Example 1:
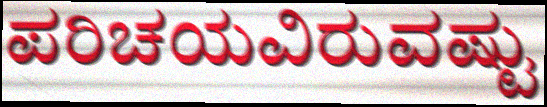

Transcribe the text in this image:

ಪರಿಚಯವಿರುವಷ್ಟು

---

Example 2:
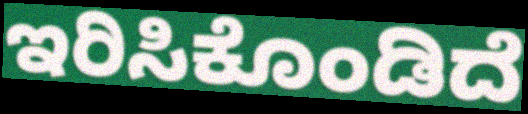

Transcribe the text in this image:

ಇರಿಸಿಕೊಂಡಿದೆ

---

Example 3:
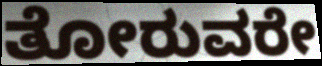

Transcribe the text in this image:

ತೋರುವರೇ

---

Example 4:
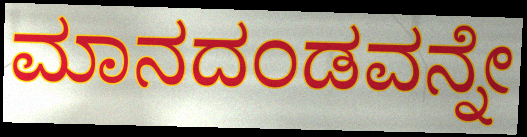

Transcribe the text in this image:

ಮಾನದಂಡವನ್ನೇ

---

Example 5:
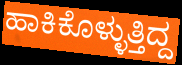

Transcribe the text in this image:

ಹಾಕಿಕೊಳ್ಳುತ್ತಿದ್ದ